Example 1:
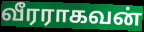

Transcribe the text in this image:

வீரராகவன்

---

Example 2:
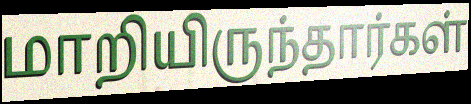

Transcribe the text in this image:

மாறியிருந்தார்கள்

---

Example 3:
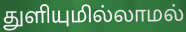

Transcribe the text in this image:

துளியுமில்லாமல்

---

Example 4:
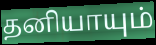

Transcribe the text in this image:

தனியாயும்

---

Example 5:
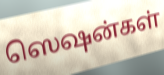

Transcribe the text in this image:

ஸெஷன்கள்